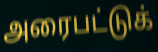
அரைபட்டுக்